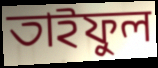
তাইফুল